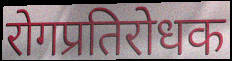
रोगप्रतिरोधक